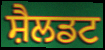
ਸ਼ੈਲਡਟ